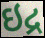
ઇદ્ર